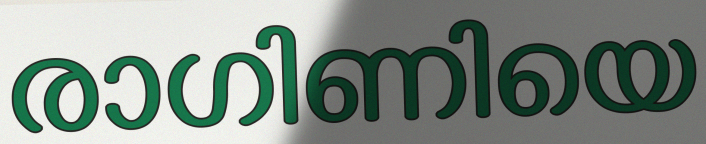
രാഗിണിയെ